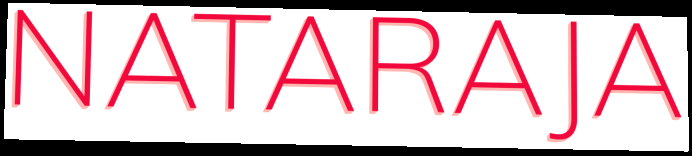
NATARAJA